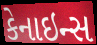
કેનાઇન્સ